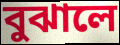
বুঝালে